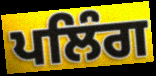
ਪਲਿੰਗ